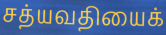
சத்யவதியைக்